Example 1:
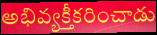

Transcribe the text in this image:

అభివ్యక్తీకరించాడు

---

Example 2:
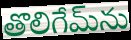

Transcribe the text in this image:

తొలిగేమ్‌ను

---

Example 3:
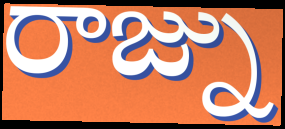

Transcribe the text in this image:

రాజ్ను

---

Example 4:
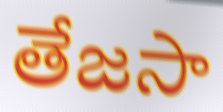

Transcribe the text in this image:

తేజసా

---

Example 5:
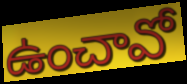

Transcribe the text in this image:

ఉంచావో